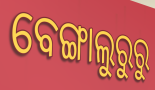
ବେଙ୍ଗାଲୁରୁରୁ